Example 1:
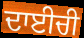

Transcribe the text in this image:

ਦਾਈਚੀ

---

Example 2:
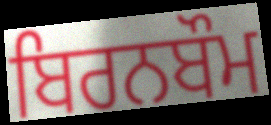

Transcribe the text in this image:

ਬਿਰਨਬੌਮ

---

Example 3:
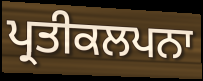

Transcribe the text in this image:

ਪ੍ਰਤੀਕਲਪਨਾ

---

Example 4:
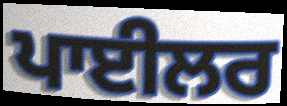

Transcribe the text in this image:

ਪਾਈਲਰ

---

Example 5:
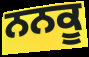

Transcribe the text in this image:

ਨਨਕੂ